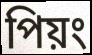
পিয়ং